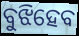
ବୁଝିହେବ